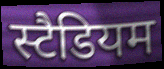
स्टैडियम